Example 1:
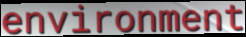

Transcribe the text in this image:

environment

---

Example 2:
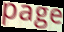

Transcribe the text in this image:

page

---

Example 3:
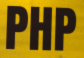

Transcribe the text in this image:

PHP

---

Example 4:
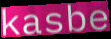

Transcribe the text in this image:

kasbe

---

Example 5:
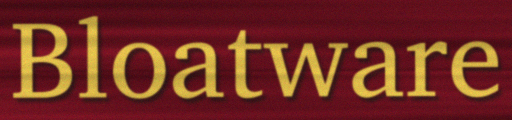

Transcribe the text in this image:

Bloatware